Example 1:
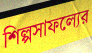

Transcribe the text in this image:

শিল্পসাফল্যের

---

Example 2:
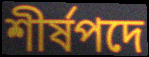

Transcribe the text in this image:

শীর্ষপদে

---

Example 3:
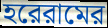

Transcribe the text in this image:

হরেরামের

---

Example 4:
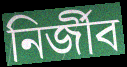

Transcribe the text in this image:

নির্জীব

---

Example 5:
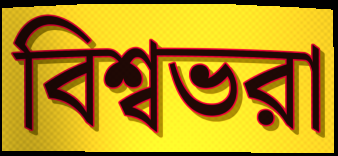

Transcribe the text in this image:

বিশ্বভরা